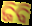
ଜିବି